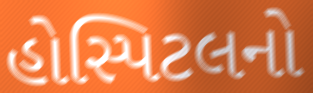
હોસ્પિટલનો